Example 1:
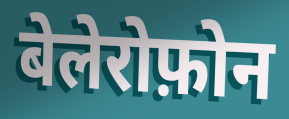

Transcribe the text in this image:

बेलेरोफ़ोन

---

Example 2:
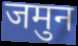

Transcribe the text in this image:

जमुन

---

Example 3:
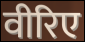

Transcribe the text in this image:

वीरिए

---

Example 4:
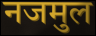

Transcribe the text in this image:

नजमुल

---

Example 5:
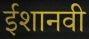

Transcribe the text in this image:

ईशानवी